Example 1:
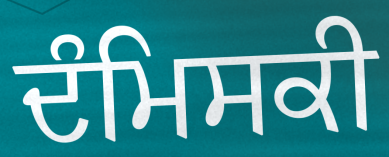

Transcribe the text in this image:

ਦੰਮਿਸਕੀ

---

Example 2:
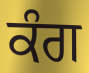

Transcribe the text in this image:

ਕੰਗ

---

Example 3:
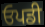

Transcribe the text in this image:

ਓਪਡੀ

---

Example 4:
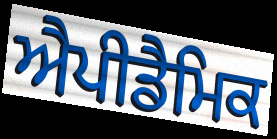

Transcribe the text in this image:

ਐਪੀਡੈਮਿਕ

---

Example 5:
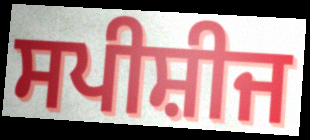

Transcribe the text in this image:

ਸਪੀਸ਼ੀਜ